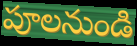
పూలనుండి